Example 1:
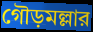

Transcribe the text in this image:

গৌড়মল্লার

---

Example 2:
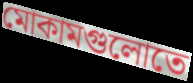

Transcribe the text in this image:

মোকামগুলোতে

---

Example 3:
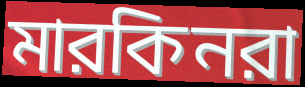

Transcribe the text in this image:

মারকিনরা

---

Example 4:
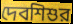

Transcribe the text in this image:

দেবশিশুর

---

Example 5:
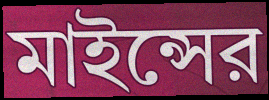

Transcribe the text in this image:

মাইন্সের